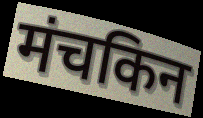
मंचकिन